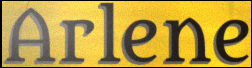
Arlene